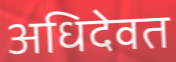
अधिदेवत